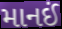
માનઈં